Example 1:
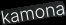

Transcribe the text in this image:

kamona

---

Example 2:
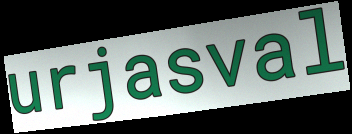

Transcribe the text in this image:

urjasval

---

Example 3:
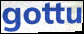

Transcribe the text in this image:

gottu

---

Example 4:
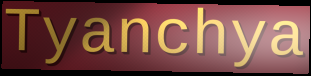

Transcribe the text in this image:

Tyanchya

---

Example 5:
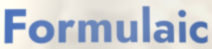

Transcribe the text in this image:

Formulaic